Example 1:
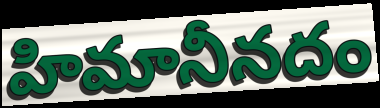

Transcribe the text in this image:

హిమానీనదం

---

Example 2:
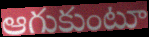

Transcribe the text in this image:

ఆగుకుంటూ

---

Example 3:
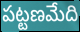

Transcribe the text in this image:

పట్టణమేది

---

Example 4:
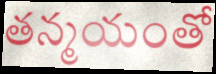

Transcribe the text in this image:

తన్మయంతో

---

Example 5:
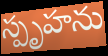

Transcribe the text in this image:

స్పృహను